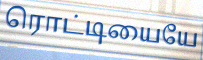
ரொட்டியையே